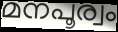
മനപൂര്വം